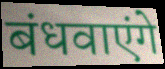
बंधवाएंगे